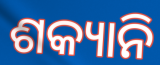
ଶକ୍ୟାନି